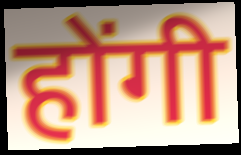
होंगी